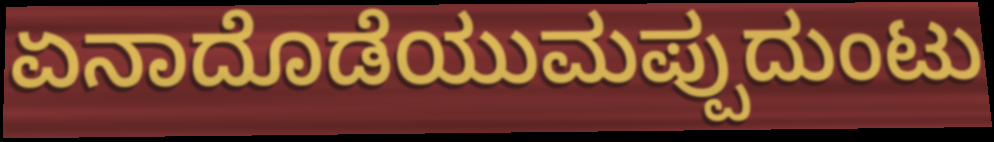
ಏನಾದೊಡೆಯುಮಪ್ಪುದುಂಟು